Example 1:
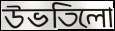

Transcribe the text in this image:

উভতিলো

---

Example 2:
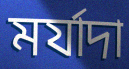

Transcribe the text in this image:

মৰ্যাদা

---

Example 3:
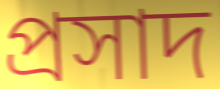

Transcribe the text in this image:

প্ৰসাদ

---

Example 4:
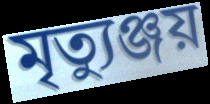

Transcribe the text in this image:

মৃত্যুঞ্জয়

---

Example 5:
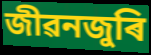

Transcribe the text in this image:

জীৱনজুৰি